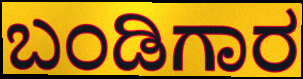
ಬಂಡಿಗಾರ